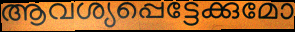
ആവശ്യപ്പെട്ടേക്കുമോ